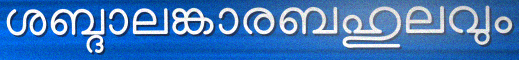
ശബ്ദാലങ്കാരബഹുലവും